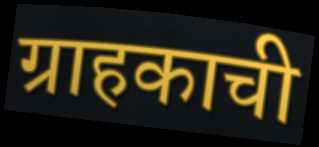
ग्राहकाची